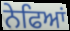
ਨੇਫਿਆਂ